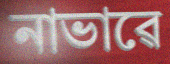
নাভাৱে